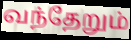
வந்தேறும்